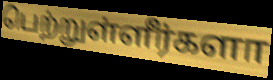
பெற்றுள்ளீர்களா